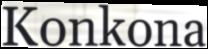
Konkona